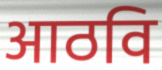
आठवि